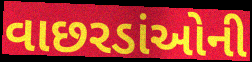
વાછરડાંઓની